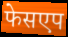
फेसएप